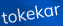
tokekar